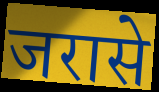
जरासे